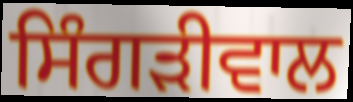
ਸਿੰਗੜੀਵਾਲ